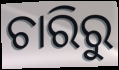
ଚାରିରୁ